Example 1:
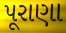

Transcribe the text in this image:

પૂરાણા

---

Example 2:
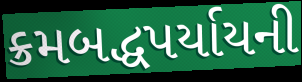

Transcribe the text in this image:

ક્રમબદ્ધપર્યાયની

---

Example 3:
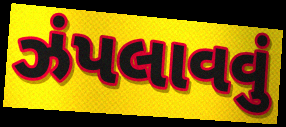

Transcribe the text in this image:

ઝંપલાવવું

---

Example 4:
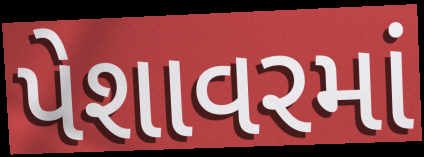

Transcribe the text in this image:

પેશાવરમાં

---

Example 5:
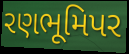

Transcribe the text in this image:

રણભૂમિપર